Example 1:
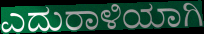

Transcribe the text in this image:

ಎದುರಾಳಿಯಾಗಿ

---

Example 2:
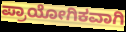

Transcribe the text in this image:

ಪ್ರಾಯೋಗಿಕವಾಗಿ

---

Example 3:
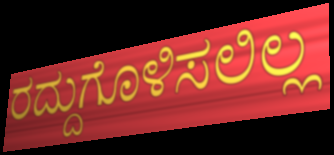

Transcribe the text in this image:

ರದ್ದುಗೊಳಿಸಲಿಲ್ಲ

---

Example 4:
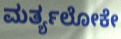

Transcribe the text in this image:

ಮರ್ತ್ಯಲೋಕೇ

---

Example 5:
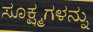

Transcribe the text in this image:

ಸೂಕ್ಷ್ಮಗಳನ್ನು